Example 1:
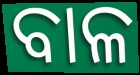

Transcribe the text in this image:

ବାଳ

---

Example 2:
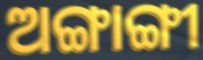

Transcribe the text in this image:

ଅଙ୍ଗାଙ୍ଗୀ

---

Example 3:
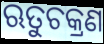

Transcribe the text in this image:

ଋତୁଚକ୍ରଣ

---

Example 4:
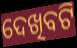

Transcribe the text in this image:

ଦେଖିବଟି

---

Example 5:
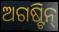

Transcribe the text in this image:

ଅଗଷ୍ଟିନ୍